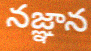
నజ్ఞాన